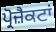
ਪ੍ਰੋਜ਼ੈਕਟਾਂ